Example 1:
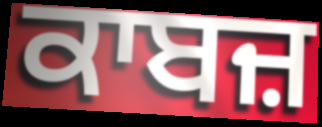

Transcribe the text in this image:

ਕਾਬਜ਼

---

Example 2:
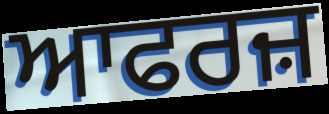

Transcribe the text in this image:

ਆਫਰਜ਼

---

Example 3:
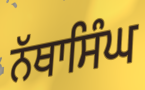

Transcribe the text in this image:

ਨੱਥਾਸਿੰਘ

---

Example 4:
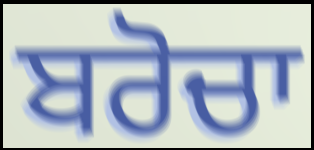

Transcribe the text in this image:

ਬਰੋਚਾ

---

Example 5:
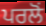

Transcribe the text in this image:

ਪਰਲੋਂ